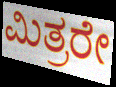
ಮಿತ್ರರೇ